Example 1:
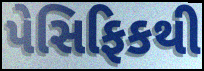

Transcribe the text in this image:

પેસિફિકથી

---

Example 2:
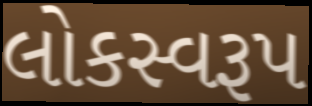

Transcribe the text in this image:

લોકસ્વરૂપ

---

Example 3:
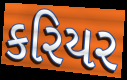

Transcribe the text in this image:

કરિયર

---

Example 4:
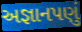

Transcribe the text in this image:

અજ્ઞાનપણું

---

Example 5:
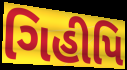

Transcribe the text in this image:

ગિહીપિ